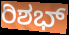
ರಿಶಭ್